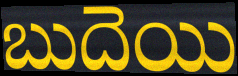
బుదెయి